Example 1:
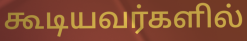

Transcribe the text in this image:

கூடியவர்களில்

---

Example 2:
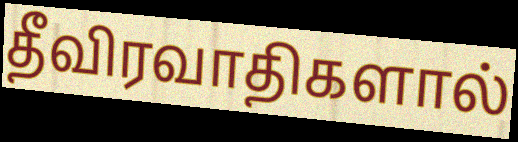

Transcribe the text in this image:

தீவிரவாதிகளால்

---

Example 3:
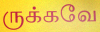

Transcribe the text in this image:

ருக்கவே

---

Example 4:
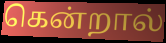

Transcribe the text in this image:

கென்றால்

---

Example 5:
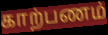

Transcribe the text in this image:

காற்பணம்